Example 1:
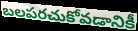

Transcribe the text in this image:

బలపరచుకోవడానికీ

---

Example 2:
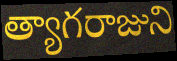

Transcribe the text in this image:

త్యాగరాజుని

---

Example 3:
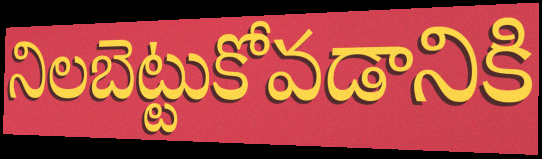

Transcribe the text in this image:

నిలబెట్టుకోవడానికి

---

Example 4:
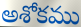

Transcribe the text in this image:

అశోకము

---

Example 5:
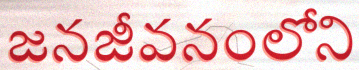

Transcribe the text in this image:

జనజీవనంలోని